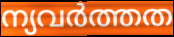
ന്യവർത്തത